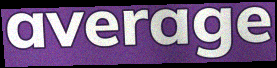
average